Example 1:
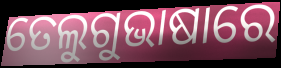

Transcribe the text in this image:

ତେଲୁଗୁଭାଷାରେ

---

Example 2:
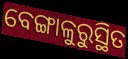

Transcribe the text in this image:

ବେଙ୍ଗାଳୁରୁସ୍ଥିତ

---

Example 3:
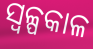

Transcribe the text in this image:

ସ୍ୱଳ୍ପକାଳ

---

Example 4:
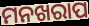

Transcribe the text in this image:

ମନଖରାପ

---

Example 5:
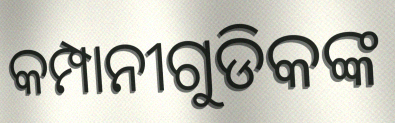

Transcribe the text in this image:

କମ୍ପାନୀଗୁଡିକଙ୍କ